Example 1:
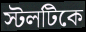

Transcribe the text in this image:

স্টলটিকে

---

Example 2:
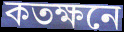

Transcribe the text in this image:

কতক্ষনে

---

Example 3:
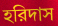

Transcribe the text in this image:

হরিদাস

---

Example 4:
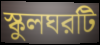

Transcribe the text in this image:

স্কুলঘরটি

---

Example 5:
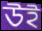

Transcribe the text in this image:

উই